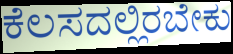
ಕೆಲಸದಲ್ಲಿರಬೇಕು